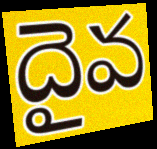
దైవ